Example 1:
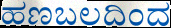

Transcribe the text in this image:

ಹಣಬಲದಿಂದ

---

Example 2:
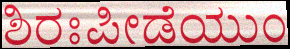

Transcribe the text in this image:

ಶಿರಃಪೀಡೆಯುಂ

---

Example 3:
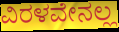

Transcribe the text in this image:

ವಿರಳವೇನಲ್ಲ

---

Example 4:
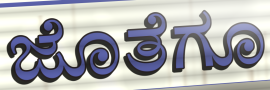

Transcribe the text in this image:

ಜೊತೆಗೂ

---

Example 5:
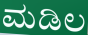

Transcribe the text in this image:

ಮಡಿಲ